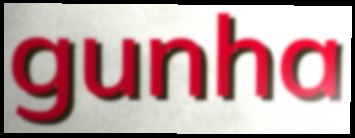
gunha